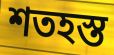
শতহস্ত